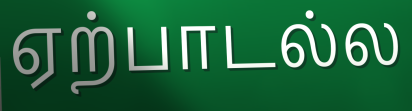
ஏற்பாடல்ல